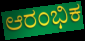
ಆರಂಭಿಕ